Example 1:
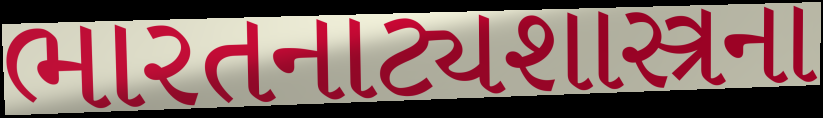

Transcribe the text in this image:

ભારતનાટ્યશાસ્ત્રના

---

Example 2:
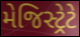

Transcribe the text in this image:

મેજિસ્ટ્રેટે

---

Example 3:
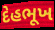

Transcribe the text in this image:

દેહભૂખ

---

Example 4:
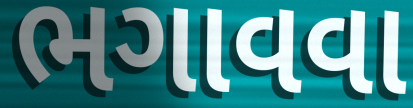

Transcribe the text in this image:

ભગાવવા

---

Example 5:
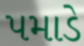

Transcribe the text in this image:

પમાડે